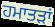
ਹਮਾਤੜਾਂ